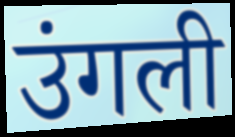
उंगली